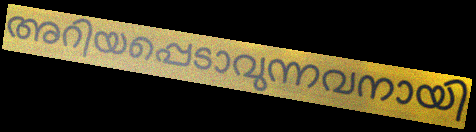
അറിയപ്പെടാവുന്നവനായി